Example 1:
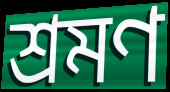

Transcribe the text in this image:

শ্রমণ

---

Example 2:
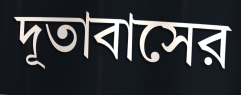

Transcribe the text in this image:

দূতাবাসের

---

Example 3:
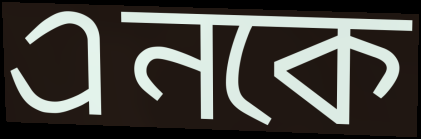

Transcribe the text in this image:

এনকে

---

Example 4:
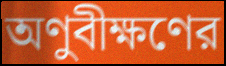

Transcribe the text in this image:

অণুবীক্ষণের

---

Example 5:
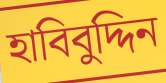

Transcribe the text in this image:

হাবিবুদ্দিন